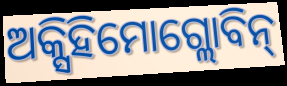
ଅକ୍ସିହିମୋଗ୍ଲୋବିନ୍